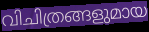
വിചിത്രങ്ങളുമായ